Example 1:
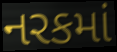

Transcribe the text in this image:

નરકમાં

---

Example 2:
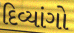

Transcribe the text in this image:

દિવ્યાંગો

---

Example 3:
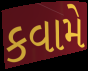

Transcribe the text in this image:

કવામે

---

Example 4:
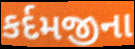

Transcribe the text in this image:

કર્દમજીના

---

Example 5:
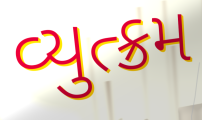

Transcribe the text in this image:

વ્યુત્ક્રમ